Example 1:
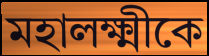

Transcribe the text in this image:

মহালক্ষ্মীকে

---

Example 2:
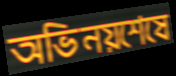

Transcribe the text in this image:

অভিনয়শেষে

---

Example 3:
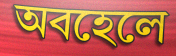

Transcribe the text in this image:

অবহেলে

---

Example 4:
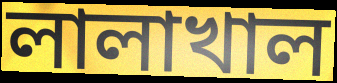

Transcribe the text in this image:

লালাখাল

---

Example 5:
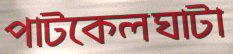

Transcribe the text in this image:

পাটকেলঘাটা